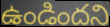
ఉండిందని